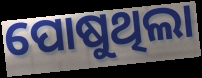
ପୋଷୁଥିଲା